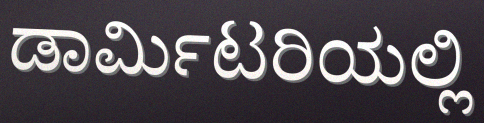
ಡಾರ್ಮಿಟರಿಯಲ್ಲಿ